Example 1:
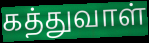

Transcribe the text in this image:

கத்துவாள்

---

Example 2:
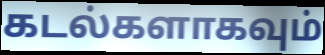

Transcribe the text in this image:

கடல்களாகவும்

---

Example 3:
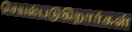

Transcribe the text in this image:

செயல்படுகிறார்கள்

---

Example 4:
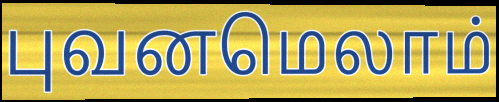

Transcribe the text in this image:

புவனமெலாம்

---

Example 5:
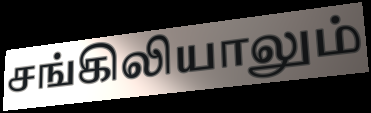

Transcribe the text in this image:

சங்கிலியாலும்